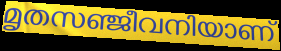
മൃതസഞ്ജീവനിയാണ്